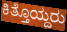
ಕಿತ್ತೊಯ್ದರು